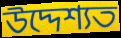
উদ্দেশ্যত